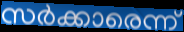
സർക്കാരെന്ന്